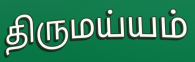
திருமய்யம்